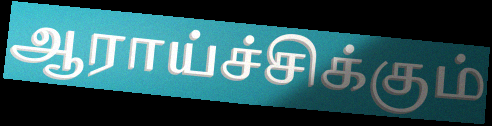
ஆராய்ச்சிக்கும்